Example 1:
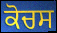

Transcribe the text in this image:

ਕੋਚਸ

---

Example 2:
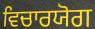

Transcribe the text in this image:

ਵਿਚਾਰਯੋਗ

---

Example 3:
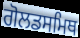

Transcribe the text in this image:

ਗੋਲਡਸਮਿਥ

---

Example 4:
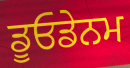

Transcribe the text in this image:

ਡੂਓਡੇਨਮ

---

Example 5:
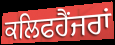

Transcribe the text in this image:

ਕਲਿਫਹੈਂਜਰਾਂ